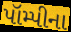
પૉમ્પીના